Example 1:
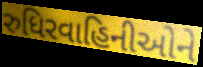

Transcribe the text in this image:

રુધિરવાહિનીઓને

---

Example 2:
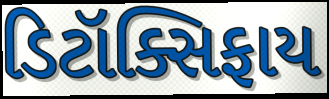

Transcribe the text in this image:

ડિટૉક્સિફાય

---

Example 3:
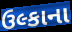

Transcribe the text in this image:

ઉલ્કાના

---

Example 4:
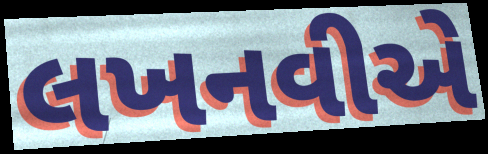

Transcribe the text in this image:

લખનવીએ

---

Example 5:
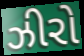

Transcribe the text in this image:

ઝીરો